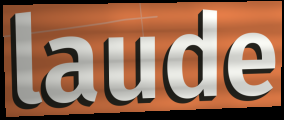
laude